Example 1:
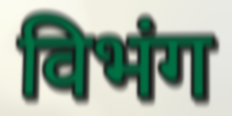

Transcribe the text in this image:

विभंग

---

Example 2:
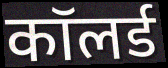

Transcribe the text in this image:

कॉलर्ड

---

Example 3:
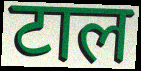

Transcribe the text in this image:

टाल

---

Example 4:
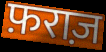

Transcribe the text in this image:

फ़राज़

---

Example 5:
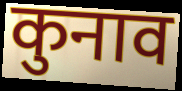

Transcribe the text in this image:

कुनाव